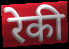
रेकी